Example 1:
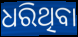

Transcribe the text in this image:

ଧରିଥିବା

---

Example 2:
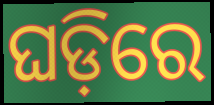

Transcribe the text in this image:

ଘଡ଼ିରେ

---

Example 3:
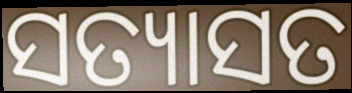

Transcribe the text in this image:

ସତ୍ୟାସତ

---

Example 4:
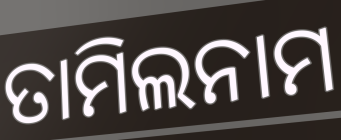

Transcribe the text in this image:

ତାମିଲନାମ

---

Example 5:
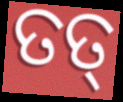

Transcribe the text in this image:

ତତ୍